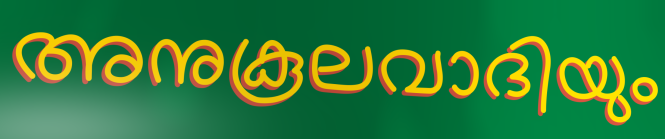
അനുകൂലവാദിയും